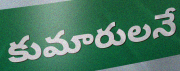
కుమారులనే